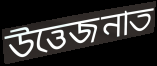
উত্তেজনাত